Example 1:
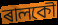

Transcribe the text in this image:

ৰালকৌ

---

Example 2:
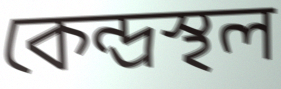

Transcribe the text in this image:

কেন্দ্ৰস্থল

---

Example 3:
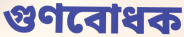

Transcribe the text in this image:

গুণবোধক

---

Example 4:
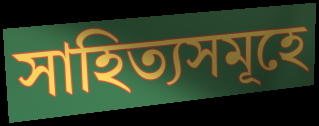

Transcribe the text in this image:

সাহিত্যসমূহে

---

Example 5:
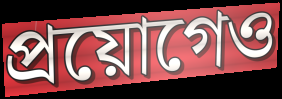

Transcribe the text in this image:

প্ৰয়োগেও